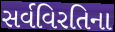
સર્વવિરતિના